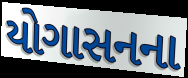
યોગાસનના